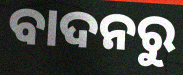
ବାଦନରୁ